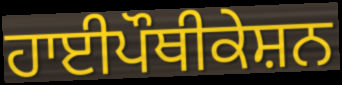
ਹਾਈਪੌਥੀਕੇਸ਼ਨ